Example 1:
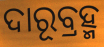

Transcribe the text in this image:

ଦାରୂବ୍ରହ୍ମ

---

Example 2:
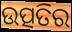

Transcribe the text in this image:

ଉତ୍ପତିର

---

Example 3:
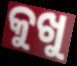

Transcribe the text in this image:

କୁଖୁ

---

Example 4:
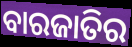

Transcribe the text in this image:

ବାରଜାତିର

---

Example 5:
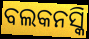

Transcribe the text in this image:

ବଲକନସ୍କି